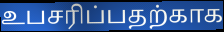
உபசரிப்பதற்காக